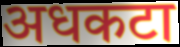
अधकटा